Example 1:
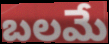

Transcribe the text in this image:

బలమే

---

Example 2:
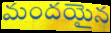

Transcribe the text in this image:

మందయైన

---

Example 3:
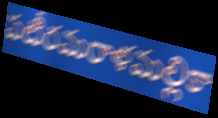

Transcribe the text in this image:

పటీరమరాళమల్లికా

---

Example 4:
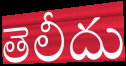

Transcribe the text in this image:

తెలీదు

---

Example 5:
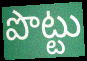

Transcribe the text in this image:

పొట్టు